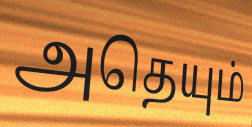
அதெயும்